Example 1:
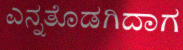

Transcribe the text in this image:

ಎನ್ನತೊಡಗಿದಾಗ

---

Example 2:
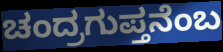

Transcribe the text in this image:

ಚಂದ್ರಗುಪ್ತನೆಂಬ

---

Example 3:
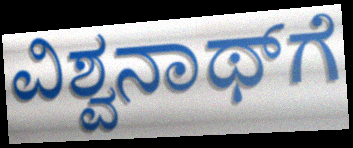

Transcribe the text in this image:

ವಿಶ್ವನಾಥ್‌ಗೆ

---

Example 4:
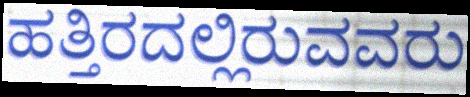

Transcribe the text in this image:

ಹತ್ತಿರದಲ್ಲಿರುವವರು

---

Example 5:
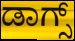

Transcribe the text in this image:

ಡಾಗ್ಸ್